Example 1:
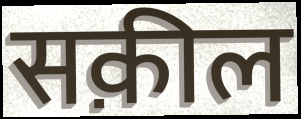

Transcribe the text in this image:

सक़ील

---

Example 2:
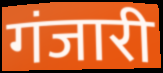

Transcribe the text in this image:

गंजारी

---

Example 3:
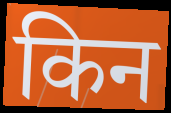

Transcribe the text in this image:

किन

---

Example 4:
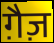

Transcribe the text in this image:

ग़ैज़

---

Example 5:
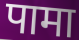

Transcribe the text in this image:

पामा